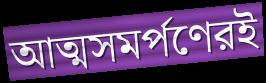
আত্মসমর্পণেরই